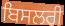
ਬਿਸਲਰੀ